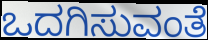
ಒದಗಿಸುವಂತೆ